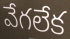
వేగలేక